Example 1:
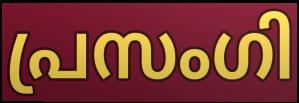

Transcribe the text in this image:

പ്രസംഗി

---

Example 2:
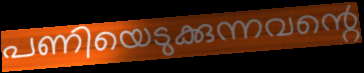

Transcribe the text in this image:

പണിയെടുക്കുന്നവന്റെ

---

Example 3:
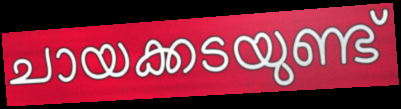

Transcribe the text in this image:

ചായക്കടയുണ്ട്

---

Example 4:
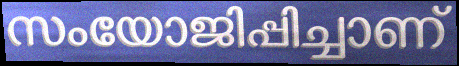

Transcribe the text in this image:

സംയോജിപ്പിച്ചാണ്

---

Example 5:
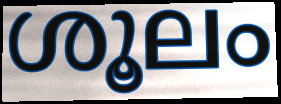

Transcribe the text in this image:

ശൂലം